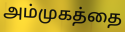
அம்முகத்தை